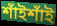
শাঁইশাঁই